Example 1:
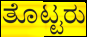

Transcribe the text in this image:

ತೊಟ್ಟರು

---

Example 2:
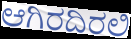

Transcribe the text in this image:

ಆಗಿರದಿರಲಿ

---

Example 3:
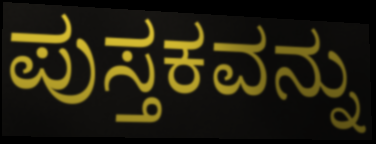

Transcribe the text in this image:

ಪುಸ್ತಕವನ್ನು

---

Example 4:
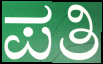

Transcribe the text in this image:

ಪತಿ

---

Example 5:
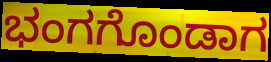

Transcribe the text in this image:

ಭಂಗಗೊಂಡಾಗ